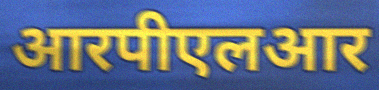
आरपीएलआर